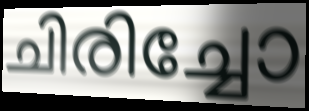
ചിരിച്ചോ